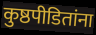
कुष्ठपीडितांना